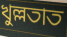
খুল্লতাত